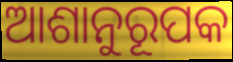
ଆଶାନୁରୂପକ